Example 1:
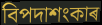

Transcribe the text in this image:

বিপদাশংকাৰ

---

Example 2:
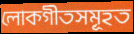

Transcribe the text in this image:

লোকগীতসমূহত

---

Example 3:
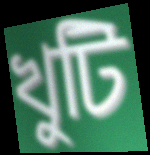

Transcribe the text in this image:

খুটি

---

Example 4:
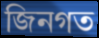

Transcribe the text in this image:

জিনগত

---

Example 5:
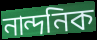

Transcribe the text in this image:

নান্দনিক